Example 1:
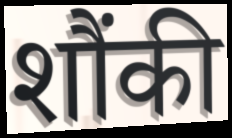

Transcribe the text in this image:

शौंकी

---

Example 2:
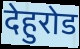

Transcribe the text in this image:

देहुरोड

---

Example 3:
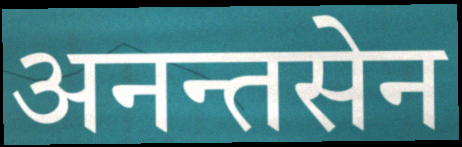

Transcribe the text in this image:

अनन्तसेन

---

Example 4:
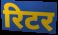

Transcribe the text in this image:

रिटर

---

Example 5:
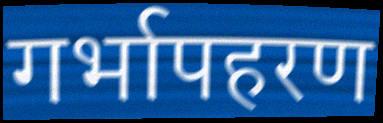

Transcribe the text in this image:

गर्भापहरण